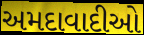
અમદાવાદીઓ